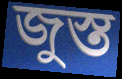
জুস্ত